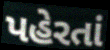
પહેરતાં